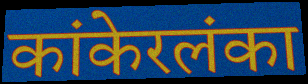
कांकेरलंका